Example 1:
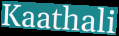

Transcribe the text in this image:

Kaathali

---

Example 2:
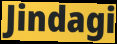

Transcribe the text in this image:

Jindagi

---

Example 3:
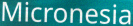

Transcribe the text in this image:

Micronesia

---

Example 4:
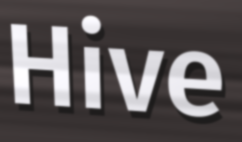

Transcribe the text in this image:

Hive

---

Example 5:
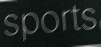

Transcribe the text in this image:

sports